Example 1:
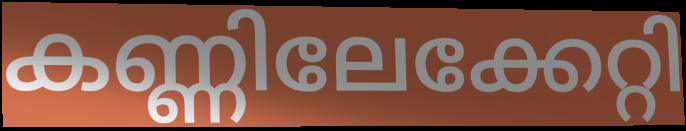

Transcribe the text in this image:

കണ്ണിലേക്കേറ്റി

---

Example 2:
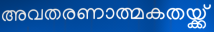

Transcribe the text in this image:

അവതരണാത്മകതയ്ക്ക്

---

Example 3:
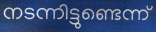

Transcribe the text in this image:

നടന്നിട്ടുണ്ടെന്ന്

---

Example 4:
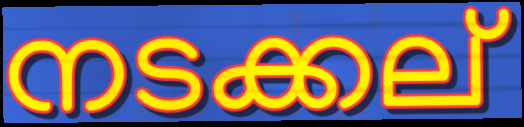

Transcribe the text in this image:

നടക്കല്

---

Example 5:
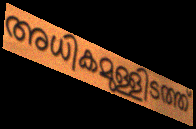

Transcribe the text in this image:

അധികമുള്ളിടത്ത്